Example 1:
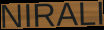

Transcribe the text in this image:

NIRALI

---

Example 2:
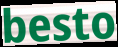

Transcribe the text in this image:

besto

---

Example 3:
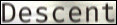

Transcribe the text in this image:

Descent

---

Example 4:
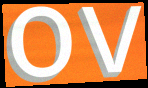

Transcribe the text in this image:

ov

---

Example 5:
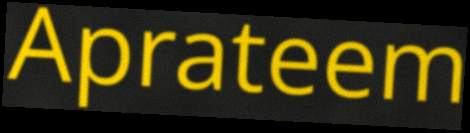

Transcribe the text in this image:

Aprateem